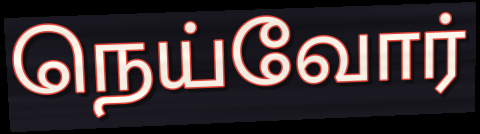
நெய்வோர்